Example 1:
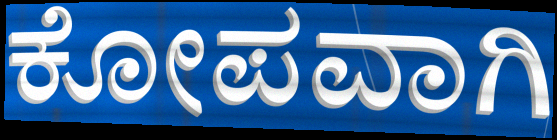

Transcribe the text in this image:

ಕೋಪವಾಗಿ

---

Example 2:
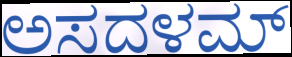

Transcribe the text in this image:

ಅಸದಳಮ್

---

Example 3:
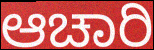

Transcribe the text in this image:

ಆಚಾರಿ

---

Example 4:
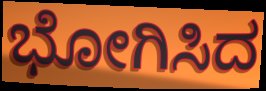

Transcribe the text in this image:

ಭೋಗಿಸಿದ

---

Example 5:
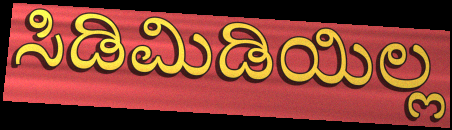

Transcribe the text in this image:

ಸಿಡಿಮಿಡಿಯಿಲ್ಲ